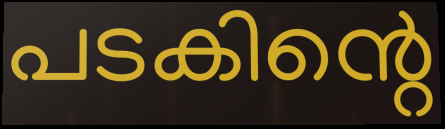
പടകിന്റെ